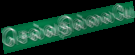
செல்வதில்லையே